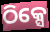
ଠିକ୍ସେ